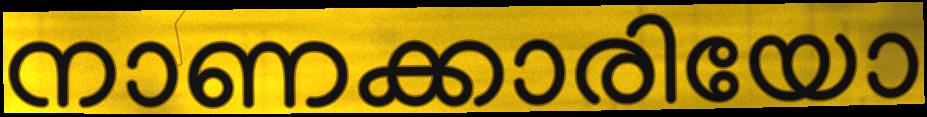
നാണക്കാരിയോ